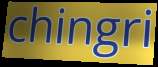
chingri